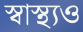
স্বাস্থ্যও